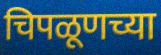
चिपळूणच्या